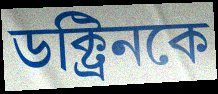
ডক্ট্রিনকে